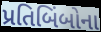
પ્રતિબિંબોના